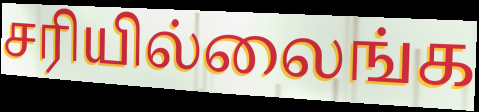
சரியில்லைங்க